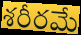
శరీరమే